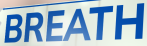
BREATH